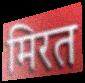
मिरत